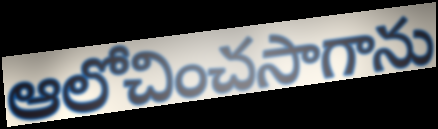
ఆలోచించసాగాను